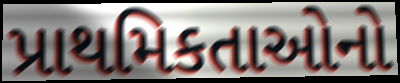
પ્રાથમિકતાઓનો